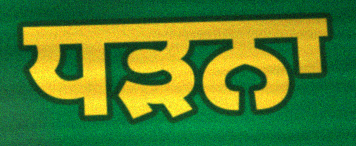
ਧੜਨਾ